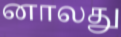
னாலது